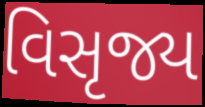
વિસૃજ્ય